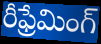
రీఫ్రేమింగ్